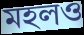
মহলও